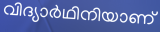
വിദ്യാർഥിനിയാണ്